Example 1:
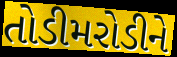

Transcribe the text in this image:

તોડીમરોડીને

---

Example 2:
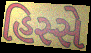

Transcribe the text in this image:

હિસ્સે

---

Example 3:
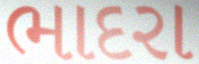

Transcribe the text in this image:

ભાદરા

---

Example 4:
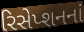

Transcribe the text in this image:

રિસેપ્શનનાં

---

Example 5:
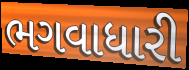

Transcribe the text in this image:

ભગવાધારી